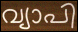
വ്യാപി